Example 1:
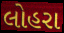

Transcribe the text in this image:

લોહરા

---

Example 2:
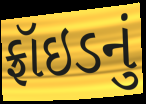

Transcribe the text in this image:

ફ્રૉઇડનું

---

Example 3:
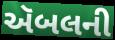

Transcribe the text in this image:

ઍબલની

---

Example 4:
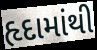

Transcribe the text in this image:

હૃદામાંથી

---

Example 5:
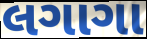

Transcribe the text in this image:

લગાગા